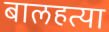
बालहत्या